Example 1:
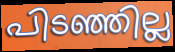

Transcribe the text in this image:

പിടഞ്ഞില്ല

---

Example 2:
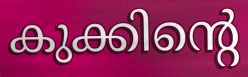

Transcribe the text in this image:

കുക്കിന്റെ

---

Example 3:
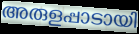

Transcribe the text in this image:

അരുളപ്പാടായി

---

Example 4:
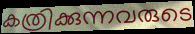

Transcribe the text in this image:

കത്രിക്കുന്നവരുടെ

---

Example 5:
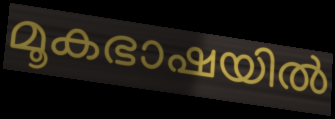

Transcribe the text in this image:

മൂകഭാഷയിൽ